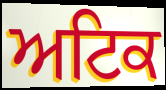
ਅਟਿਕ